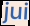
jui